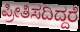
ಪ್ರೀತಿಸದಿದ್ದರೆ